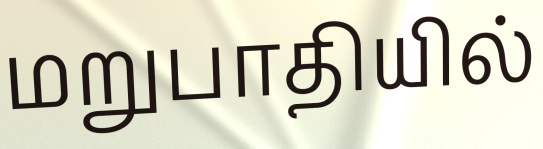
மறுபாதியில்